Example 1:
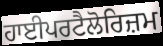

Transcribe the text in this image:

ਹਾਈਪਰਟੈਲੋਰਿਜ਼ਮ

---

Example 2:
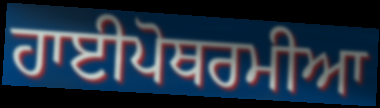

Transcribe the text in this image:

ਹਾਈਪੋਥਰਮੀਆ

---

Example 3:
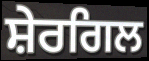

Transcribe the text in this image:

ਸ਼ੇਰਗਿਲ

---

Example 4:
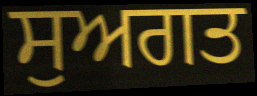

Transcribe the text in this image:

ਸੁਅਗਤ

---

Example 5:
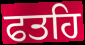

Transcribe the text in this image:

ਫਤਹਿ